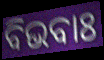
ବିଭବାଃ